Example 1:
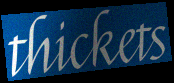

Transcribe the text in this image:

thickets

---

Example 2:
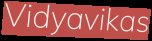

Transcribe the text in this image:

Vidyavikas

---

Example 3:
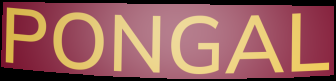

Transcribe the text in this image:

PONGAL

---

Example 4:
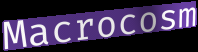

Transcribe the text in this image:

Macrocosm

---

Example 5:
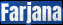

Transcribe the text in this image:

Farjana